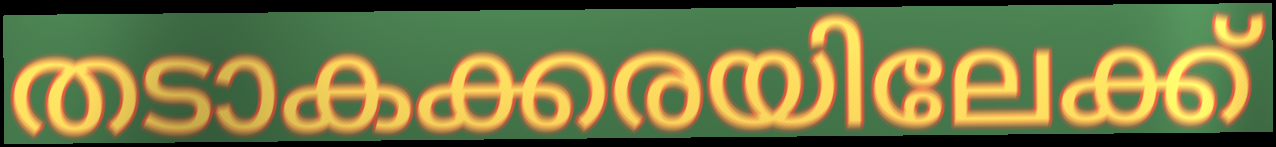
തടാകക്കരയിലേക്ക്